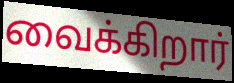
வைக்கிறார்